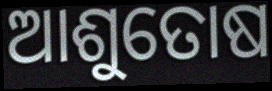
ଆଶୁତୋଷ